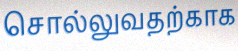
சொல்லுவதற்காக